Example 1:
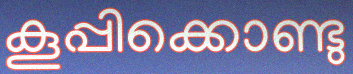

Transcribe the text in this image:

കൂപ്പിക്കൊണ്ടു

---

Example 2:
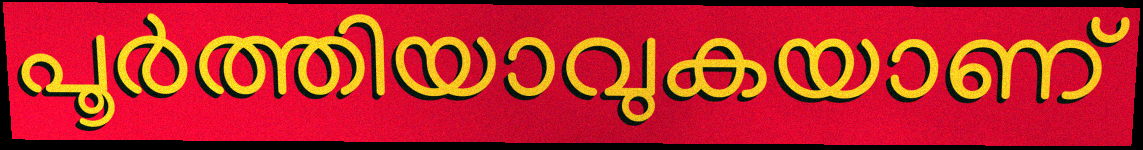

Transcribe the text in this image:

പൂർത്തിയാവുകയാണ്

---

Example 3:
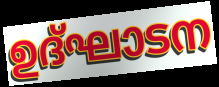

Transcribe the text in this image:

ഉദ്ഘാടന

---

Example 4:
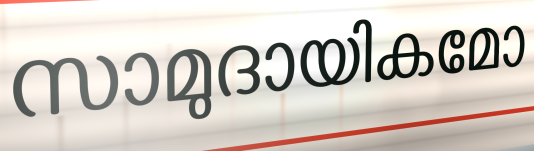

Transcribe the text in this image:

സാമുദായികമോ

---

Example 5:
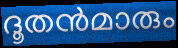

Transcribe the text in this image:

ദൂതൻമാരും